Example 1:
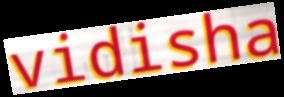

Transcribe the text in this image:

vidisha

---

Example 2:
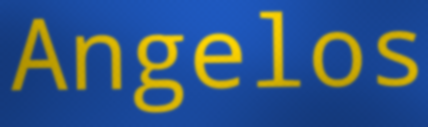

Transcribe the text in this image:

Angelos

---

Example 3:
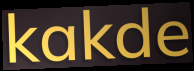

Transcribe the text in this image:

kakde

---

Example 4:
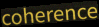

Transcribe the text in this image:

coherence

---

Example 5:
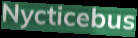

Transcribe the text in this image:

Nycticebus